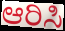
ಆರಿಸಿ